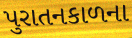
પુરાતનકાળના